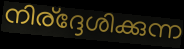
നിര്ദ്ദേശിക്കുന്ന